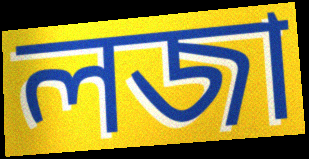
লজা